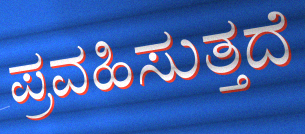
ಪ್ರವಹಿಸುತ್ತದೆ